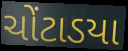
ચોંટાડયા